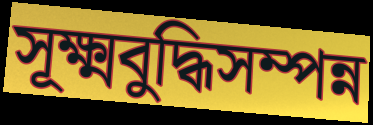
সূক্ষ্মবুদ্ধিসম্পন্ন